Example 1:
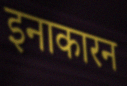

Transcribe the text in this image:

इनाकारन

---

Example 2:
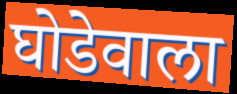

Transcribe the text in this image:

घोडेवाला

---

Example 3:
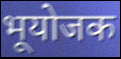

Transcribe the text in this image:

भूयोजक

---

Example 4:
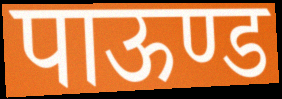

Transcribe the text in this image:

पाऊण्ड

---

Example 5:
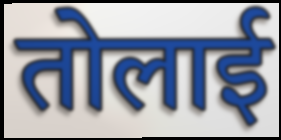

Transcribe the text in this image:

तोलाई